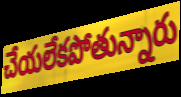
చేయలేకపోతున్నారు